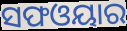
ସଫଓୟାର